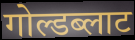
गोल्डब्लाट